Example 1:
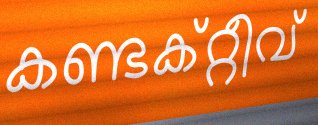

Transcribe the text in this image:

കണ്ടക്റ്റീവ്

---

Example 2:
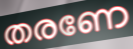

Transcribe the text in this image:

തരണേ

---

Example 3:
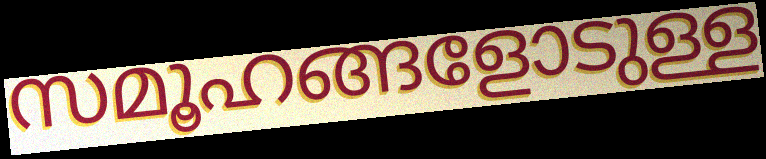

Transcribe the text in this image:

സമൂഹങ്ങളോടുള്ള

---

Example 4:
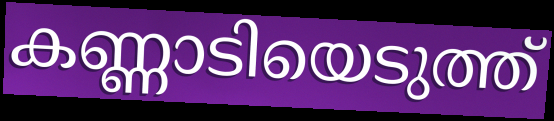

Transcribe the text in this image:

കണ്ണാടിയെടുത്ത്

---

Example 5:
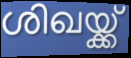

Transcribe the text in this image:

ശിഖയ്ക്ക്